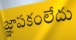
జ్ఞాపకంలేదు